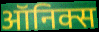
ऑनिक्स